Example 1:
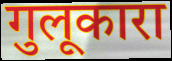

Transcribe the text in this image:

गुलूकारा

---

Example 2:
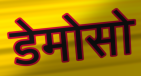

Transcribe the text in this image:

डेमोसो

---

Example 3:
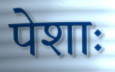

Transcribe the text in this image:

पेशाः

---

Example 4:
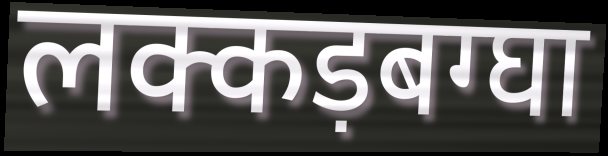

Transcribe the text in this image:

लक्कड़बग्घा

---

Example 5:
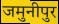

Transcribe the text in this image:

जमुनीपुर